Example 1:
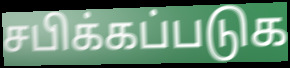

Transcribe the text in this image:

சபிக்கப்படுக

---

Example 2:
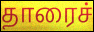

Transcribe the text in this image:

தாரைச்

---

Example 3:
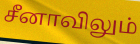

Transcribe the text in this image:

சீனாவிலும்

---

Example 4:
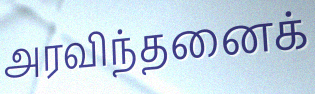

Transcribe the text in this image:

அரவிந்தனைக்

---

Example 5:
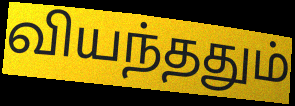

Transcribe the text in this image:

வியந்ததும்